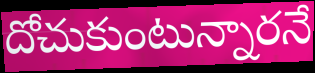
దోచుకుంటున్నారనే